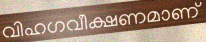
വിഹഗവീക്ഷണമാണ്